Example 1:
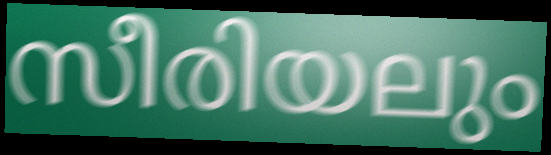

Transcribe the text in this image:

സീരിയലും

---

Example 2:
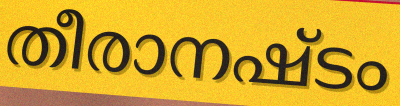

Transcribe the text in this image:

തീരാനഷ്ടം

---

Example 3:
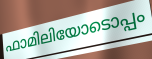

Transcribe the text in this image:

ഫാമിലിയോടൊപ്പം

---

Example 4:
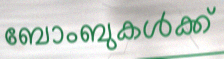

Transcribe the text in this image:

ബോംബുകൾക്ക്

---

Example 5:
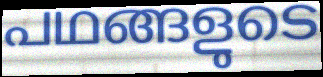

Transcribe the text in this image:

പഥങ്ങളുടെ